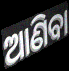
ଆଣିବା